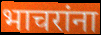
भाचरांना